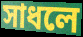
সাধলে